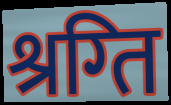
श्रग्ति